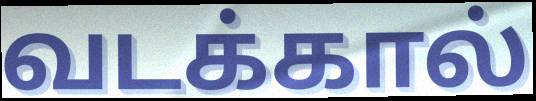
வடக்கால்